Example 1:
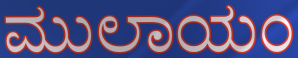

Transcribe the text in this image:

ಮುಲಾಯಂ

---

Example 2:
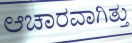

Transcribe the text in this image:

ಆಚಾರವಾಗಿತ್ತು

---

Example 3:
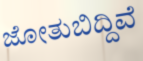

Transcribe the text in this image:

ಜೋತುಬಿದ್ದಿವೆ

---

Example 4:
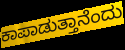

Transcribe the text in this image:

ಕಾಪಾಡುತ್ತಾನೆಂದು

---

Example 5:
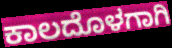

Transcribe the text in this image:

ಕಾಲದೊಳಗಾಗಿ